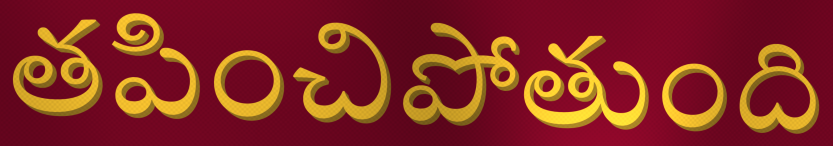
తపించిపోతుంది